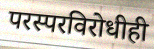
परस्परविरोधीही